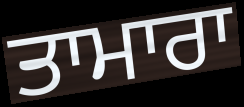
ਤਾਮਾਰਾ